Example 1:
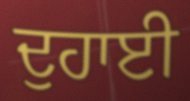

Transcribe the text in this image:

ਦੁਹਾਈ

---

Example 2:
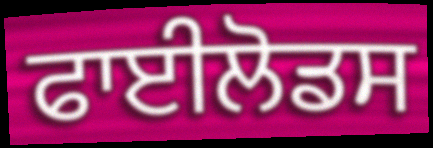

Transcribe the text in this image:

ਫਾਈਲੋਡਸ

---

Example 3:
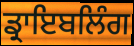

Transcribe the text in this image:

ਡ੍ਰਾਇਬਲਿੰਗ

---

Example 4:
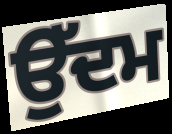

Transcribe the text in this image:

ਉੱਦਮ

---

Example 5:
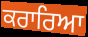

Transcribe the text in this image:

ਕਰਾਰਿਆ